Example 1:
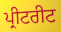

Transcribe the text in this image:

ਪ੍ਰੀਟਰੀਟ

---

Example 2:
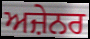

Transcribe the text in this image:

ਅਜ਼ੇਨਰ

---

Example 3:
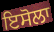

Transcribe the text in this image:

ਇਸੋਲਾ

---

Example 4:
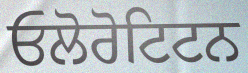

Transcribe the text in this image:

ਓਲੋਰੋਟਿਟਨ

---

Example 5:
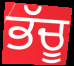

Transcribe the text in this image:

ਭੱਚੂ